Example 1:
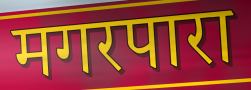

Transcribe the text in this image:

मगरपारा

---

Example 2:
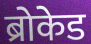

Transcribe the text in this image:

ब्रोकेड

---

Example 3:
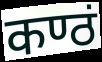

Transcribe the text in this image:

कण्ठं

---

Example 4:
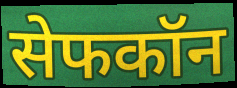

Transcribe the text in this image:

सेफकॉन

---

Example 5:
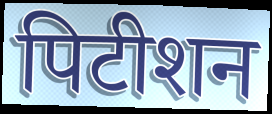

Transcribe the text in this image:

पिटीशन